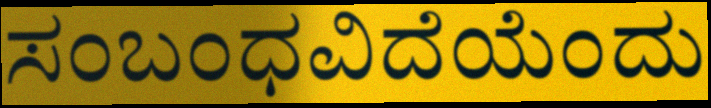
ಸಂಬಂಧವಿದೆಯೆಂದು